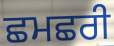
ਛਮਛਰੀ